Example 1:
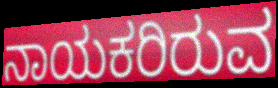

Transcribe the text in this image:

ನಾಯಕರಿರುವ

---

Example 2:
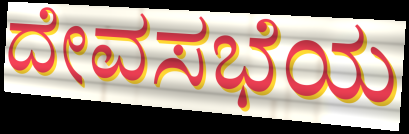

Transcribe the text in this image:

ದೇವಸಭೆಯ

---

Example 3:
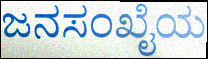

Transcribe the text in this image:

ಜನಸಂಖೈಯ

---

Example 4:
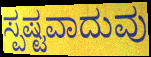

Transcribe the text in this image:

ಸ್ಪಷ್ಟವಾದುವು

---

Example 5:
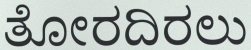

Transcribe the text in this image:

ತೋರದಿರಲು